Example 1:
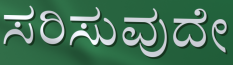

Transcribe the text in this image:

ಸರಿಸುವುದೇ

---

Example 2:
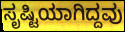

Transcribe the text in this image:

ಸೃಷ್ಟಿಯಾಗಿದ್ದವು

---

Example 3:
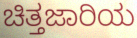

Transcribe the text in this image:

ಚಿತ್ತಜಾರಿಯ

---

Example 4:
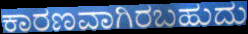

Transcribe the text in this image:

ಕಾರಣವಾಗಿರಬಹುದು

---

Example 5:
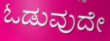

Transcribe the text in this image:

ಓಡುವುದೇ